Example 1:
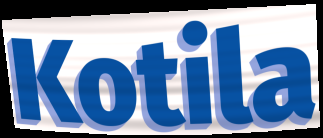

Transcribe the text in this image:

Kotila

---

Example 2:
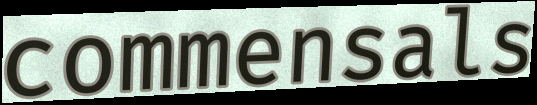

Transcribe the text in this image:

commensals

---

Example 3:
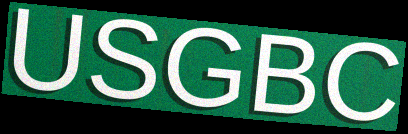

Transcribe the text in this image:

USGBC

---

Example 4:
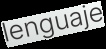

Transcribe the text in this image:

lenguaje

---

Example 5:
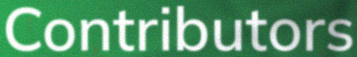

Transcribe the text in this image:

Contributors